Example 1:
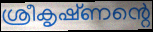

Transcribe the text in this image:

ശ്രീകൃഷ്‌ണന്റെ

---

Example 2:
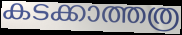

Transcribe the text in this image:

കടക്കാത്തത്ര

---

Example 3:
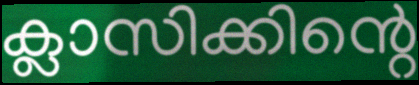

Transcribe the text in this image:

ക്ലാസിക്കിന്റെ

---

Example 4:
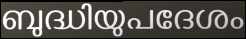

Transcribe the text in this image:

ബുദ്ധിയുപദേശം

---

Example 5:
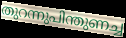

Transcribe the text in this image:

തുറന്നുപിന്തുണച്ച